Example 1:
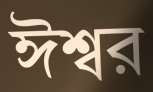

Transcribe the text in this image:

ঈশ্বর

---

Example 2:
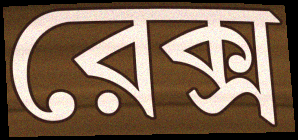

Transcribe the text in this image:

রেক্স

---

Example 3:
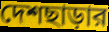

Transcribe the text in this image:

দেশছাড়ার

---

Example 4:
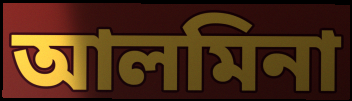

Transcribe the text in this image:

আলমিনা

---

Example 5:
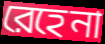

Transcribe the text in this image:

রেহেনা